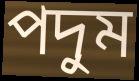
পদুম